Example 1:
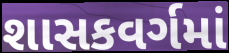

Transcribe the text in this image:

શાસકવર્ગમાં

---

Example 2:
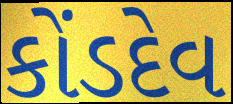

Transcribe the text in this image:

કોંડદેવ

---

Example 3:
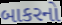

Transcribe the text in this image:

બાકરનો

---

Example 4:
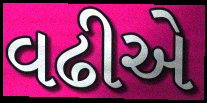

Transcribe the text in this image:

વઢીએ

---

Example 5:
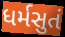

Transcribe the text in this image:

ધર્મસુતં